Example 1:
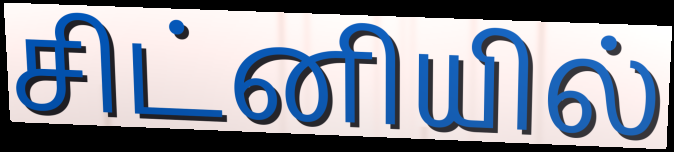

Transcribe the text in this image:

சிட்னியில்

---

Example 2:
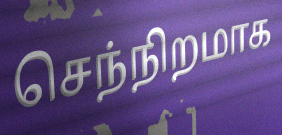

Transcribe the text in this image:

செந்நிறமாக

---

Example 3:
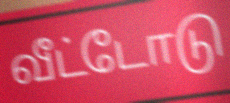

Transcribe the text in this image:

வீட்டோடு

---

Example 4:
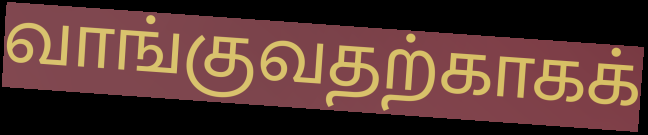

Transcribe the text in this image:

வாங்குவதற்காகக்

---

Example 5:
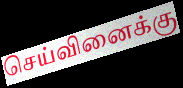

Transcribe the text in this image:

செய்வினைக்கு